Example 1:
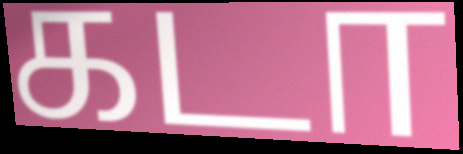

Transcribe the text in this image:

கடா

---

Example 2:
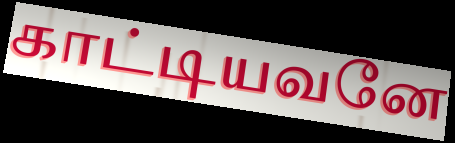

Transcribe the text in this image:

காட்டியவனே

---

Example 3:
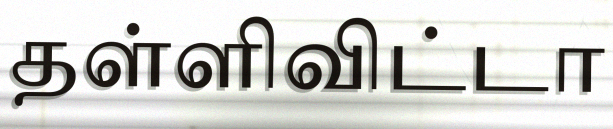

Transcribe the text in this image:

தள்ளிவிட்டா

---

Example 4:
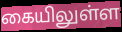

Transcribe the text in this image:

கையிலுள்ள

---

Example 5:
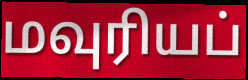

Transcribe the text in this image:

மவுரியப்